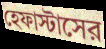
হেফাস্টাসের